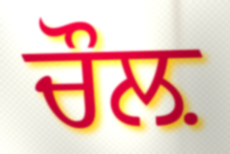
ਚੌਲ਼